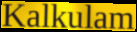
Kalkulam